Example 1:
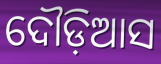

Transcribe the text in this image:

ଦୌଡ଼ିଆସ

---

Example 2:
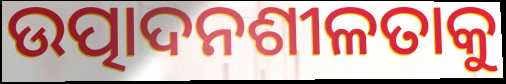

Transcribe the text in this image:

ଉତ୍ପାଦନଶୀଳତାକୁ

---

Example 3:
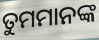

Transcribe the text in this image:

ତୁମମାନଙ୍କ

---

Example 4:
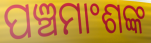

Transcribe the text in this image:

ପଞ୍ଚମାଂଶଙ୍କ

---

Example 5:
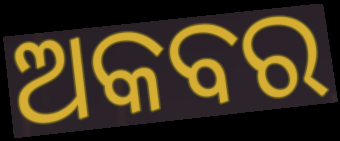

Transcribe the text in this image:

ଅକବର